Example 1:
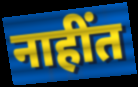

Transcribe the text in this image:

नाहींत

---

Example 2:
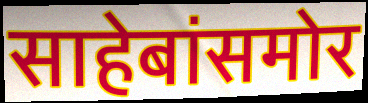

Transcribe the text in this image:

साहेबांसमोर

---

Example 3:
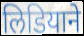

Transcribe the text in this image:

लिडियाने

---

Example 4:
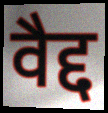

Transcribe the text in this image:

वैद्द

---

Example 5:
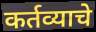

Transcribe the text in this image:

कर्तव्याचे